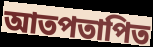
আতপতাপিত